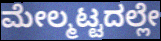
ಮೇಲ್ಮಟ್ಟದಲ್ಲೇ